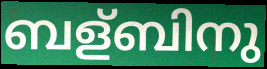
ബള്ബിനു